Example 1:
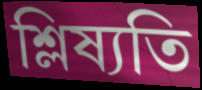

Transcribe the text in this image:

শ্লিষ্যতি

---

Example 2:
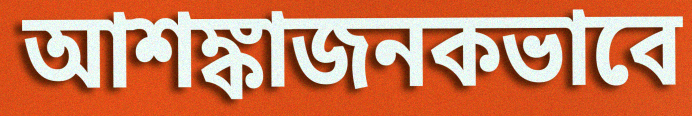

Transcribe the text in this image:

আশঙ্কাজনকভাবে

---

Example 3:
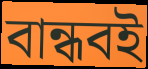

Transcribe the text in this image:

বান্ধবই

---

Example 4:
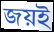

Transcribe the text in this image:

জয়ই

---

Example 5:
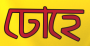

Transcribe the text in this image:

ঢোহে